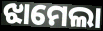
ଝାମେଲା